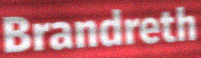
Brandreth